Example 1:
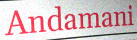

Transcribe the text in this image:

Andamani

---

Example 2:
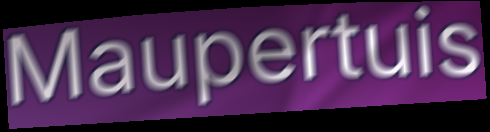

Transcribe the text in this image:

Maupertuis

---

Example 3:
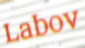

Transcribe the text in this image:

Labov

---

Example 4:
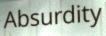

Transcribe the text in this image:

Absurdity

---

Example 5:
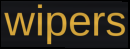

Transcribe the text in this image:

wipers